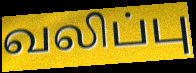
வலிப்பு